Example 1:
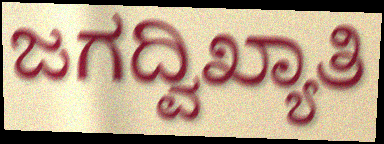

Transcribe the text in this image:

ಜಗದ್ವಿಖ್ಯಾತಿ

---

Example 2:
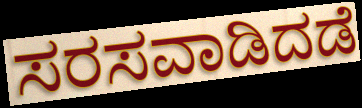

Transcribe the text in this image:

ಸರಸವಾಡಿದಡೆ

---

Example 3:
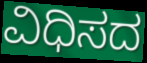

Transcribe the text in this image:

ವಿಧಿಸದ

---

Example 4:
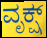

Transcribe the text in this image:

ವೃಕ್ಷ್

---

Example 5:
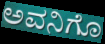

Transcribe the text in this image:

ಅವನಿಗೊ